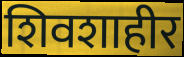
शिवशाहीर